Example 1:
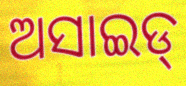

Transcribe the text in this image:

ଅସାଇଡ୍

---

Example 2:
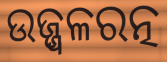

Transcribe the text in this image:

ଉଜ୍ଜ୍ୱଳରତ୍ନ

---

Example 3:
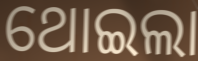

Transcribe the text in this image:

ଥୋଇଲା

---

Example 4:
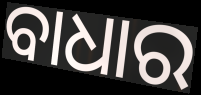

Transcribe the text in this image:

ବାଧାର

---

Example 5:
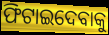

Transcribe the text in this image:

ଫିଟାଇଦେବାକୁ